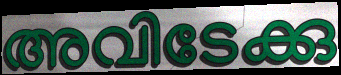
അവിടേക്കു